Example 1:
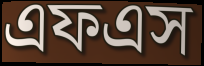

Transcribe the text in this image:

এফএস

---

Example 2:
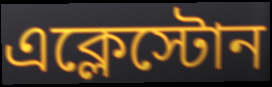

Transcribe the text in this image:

এক্লেস্টোন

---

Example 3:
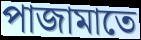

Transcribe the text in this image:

পাজামাতে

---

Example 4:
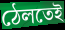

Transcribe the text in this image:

ঠেলতেই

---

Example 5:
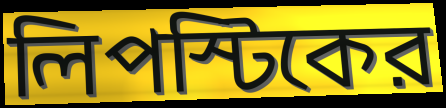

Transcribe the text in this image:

লিপস্টিকের